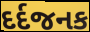
દર્દજનક